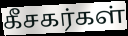
கீசகர்கள்